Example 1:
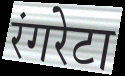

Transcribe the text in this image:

रंगरेटा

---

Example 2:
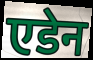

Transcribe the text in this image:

एडेन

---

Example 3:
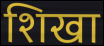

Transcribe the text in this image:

शिखा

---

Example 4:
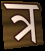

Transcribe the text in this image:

त्र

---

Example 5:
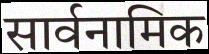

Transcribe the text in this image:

सार्वनामिक